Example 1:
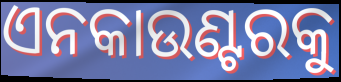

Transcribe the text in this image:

ଏନକାଉଣ୍ଟରକୁ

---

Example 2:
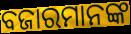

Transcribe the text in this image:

ବଜାରମାନଙ୍କ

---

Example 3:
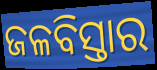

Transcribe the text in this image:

ଜଳବିସ୍ତାର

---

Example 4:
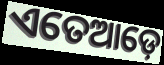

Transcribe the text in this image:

ଏତେଆଡ଼େ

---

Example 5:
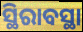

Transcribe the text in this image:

ସ୍ଥିରାବସ୍ଥା